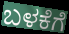
ಬಳಕೆಗೆ